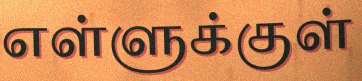
எள்ளுக்குள்